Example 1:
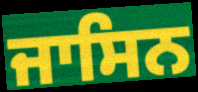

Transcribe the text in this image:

ਜਾਸਿਨ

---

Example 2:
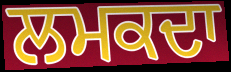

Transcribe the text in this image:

ਲਮਕਦਾ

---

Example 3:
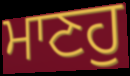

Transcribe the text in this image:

ਮਾਣਹੁ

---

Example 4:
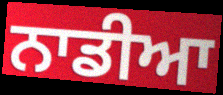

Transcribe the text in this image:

ਨਾਡੀਆ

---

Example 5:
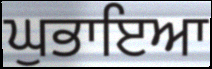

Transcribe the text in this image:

ਘੁਭਾਇਆ